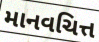
માનવચિત્ત